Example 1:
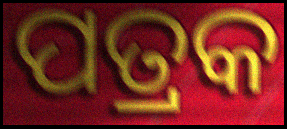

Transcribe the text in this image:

ପତ୍ରକ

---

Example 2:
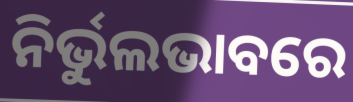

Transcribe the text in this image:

ନିର୍ଭୁଲଭାବରେ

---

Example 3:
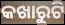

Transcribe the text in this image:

କଖାରୁଟି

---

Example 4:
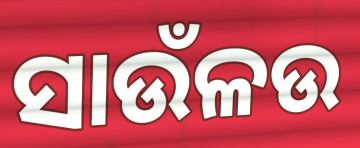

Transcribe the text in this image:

ସାଉଁଳଉ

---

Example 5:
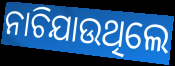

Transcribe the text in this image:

ନାଚିଯାଉଥିଲେ